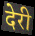
देरी